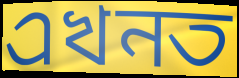
এখনত